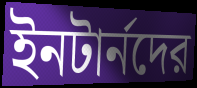
ইনটার্নদের